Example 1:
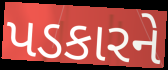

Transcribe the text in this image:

પડકારને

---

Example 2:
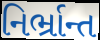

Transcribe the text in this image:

નિર્ભ્રાન્ત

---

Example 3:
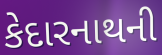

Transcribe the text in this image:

કેદારનાથની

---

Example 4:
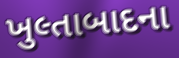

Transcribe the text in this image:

ખુલ્તાબાદના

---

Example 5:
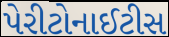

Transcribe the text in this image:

પેરીટોનાઈટીસ